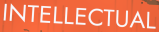
INTELLECTUAL